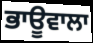
ਭਾਊਵਾਲਾ